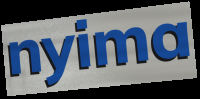
nyima